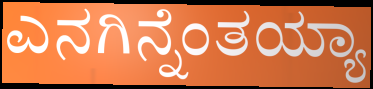
ಎನಗಿನ್ನೆಂತಯ್ಯಾ